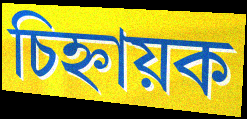
চিহ্নায়ক